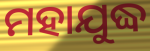
ମହାଯୁଦ୍ଧ